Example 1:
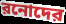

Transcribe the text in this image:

রনোদের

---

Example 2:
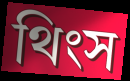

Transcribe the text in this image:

থিংস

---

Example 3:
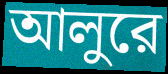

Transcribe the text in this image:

আলুরে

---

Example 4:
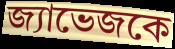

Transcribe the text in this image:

জ্যাভেজকে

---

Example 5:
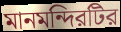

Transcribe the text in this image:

মানমন্দিরটির